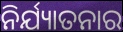
ନିର୍ଯ୍ୟାତନାର